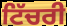
ਟਿੱਚਰੀ